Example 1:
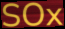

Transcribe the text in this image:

SOx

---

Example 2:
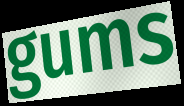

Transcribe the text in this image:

gums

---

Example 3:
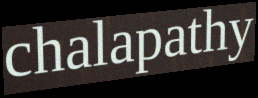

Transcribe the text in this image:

chalapathy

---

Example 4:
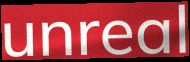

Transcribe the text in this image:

unreal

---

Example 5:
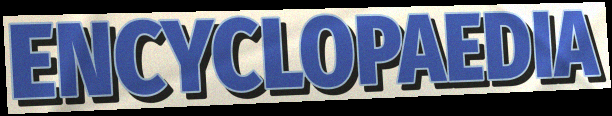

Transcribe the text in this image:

ENCYCLOPAEDIA